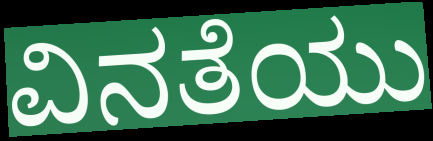
ವಿನತೆಯು